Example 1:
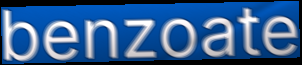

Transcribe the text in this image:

benzoate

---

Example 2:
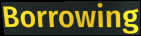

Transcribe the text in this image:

Borrowing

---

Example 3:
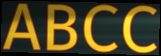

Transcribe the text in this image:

ABCC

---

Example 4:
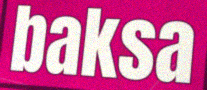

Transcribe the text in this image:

baksa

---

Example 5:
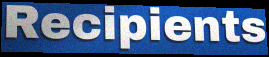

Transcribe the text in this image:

Recipients